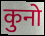
कुनो